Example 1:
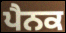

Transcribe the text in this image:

ਪੈਨਕ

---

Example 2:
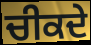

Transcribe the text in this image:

ਚੀਕਦੇ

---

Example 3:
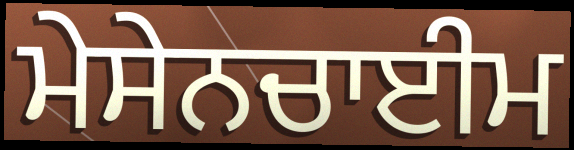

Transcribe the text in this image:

ਮੇਸੇਨਚਾਈਮ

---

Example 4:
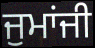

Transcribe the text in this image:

ਜੁਮਾਂਜੀ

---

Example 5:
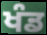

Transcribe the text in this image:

ਖੰਡ